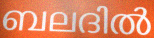
ബലദിൽ